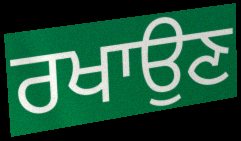
ਰਖਾਉਣ